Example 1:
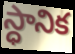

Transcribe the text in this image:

స్ధానిక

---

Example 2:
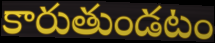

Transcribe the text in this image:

కారుతుండటం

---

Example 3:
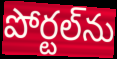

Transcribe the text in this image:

పోర్టల్‌ను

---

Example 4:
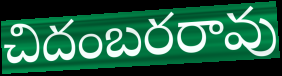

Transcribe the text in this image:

చిదంబరరావు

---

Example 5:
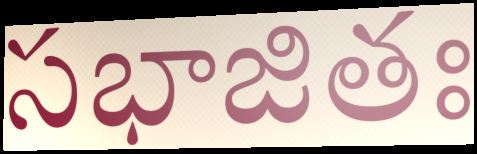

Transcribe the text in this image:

సభాజితః